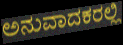
ಅನುವಾದಕರಲ್ಲಿ